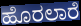
ಹೊರಲಾರೆ